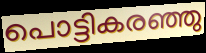
പൊട്ടികരഞ്ഞു